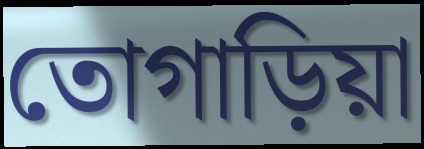
তোগাড়িয়া